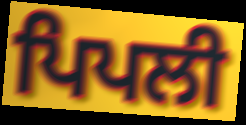
ਪਿਪਲੀ